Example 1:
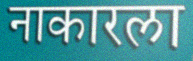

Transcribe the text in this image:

नाकारला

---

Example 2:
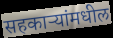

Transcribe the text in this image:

सहकाऱ्यांमधील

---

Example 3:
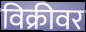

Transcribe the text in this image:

विक्रीवर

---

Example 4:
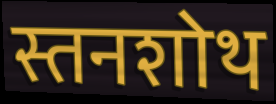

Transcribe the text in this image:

स्तनशोथ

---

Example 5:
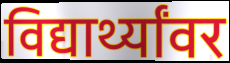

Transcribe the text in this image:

विद्यार्थ्यांवर